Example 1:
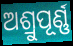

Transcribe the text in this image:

ଅଶ୍ରୁପୂର୍ଣ୍ଣ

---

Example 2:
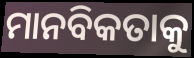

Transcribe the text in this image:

ମାନବିକତାକୁ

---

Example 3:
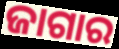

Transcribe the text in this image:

ଜାଗାର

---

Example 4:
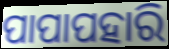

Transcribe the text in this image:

ପାପାପହାରି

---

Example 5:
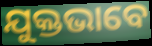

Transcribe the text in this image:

ଯୁକ୍ତଭାବେ